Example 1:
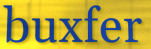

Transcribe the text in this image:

buxfer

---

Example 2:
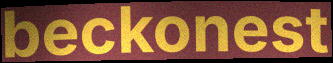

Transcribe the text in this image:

beckonest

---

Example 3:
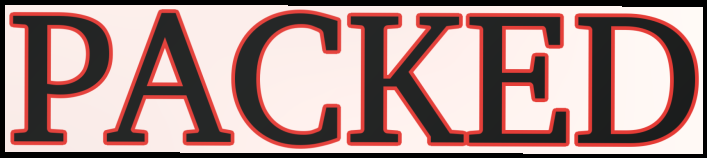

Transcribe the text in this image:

PACKED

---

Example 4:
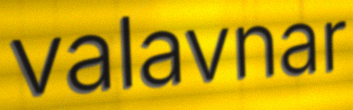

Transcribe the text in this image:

valavnar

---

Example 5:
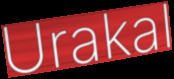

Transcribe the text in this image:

Urakal